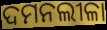
ଦମନଲୀଳା